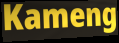
Kameng